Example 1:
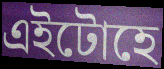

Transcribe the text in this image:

এইটোহে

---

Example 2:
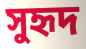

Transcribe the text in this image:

সুহৃদ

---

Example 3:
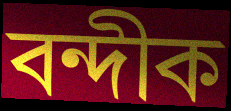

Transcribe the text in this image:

বন্দীক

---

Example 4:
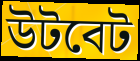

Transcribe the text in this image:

উটবেট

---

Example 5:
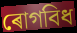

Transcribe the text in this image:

ৰোগবিধ